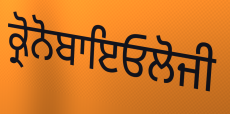
ਕ੍ਰੋਨੋਬਾਇਓਲੋਜੀ